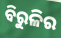
ବିରୁଳିର